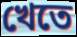
খেতে